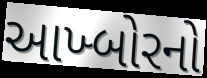
આખ્બોરનો